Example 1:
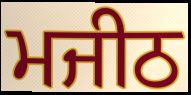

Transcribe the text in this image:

ਮਜੀਠ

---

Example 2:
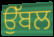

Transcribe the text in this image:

ਉੱਬਲ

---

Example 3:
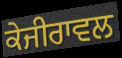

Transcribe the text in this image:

ਕੇਜੀਰਾਵਲ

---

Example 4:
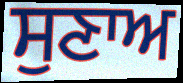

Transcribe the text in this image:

ਸੁਣਾਅ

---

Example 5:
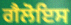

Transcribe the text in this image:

ਗੈਲੋਇਸ